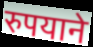
रुपयाने